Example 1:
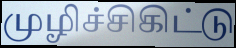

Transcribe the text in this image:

முழிச்சிகிட்டு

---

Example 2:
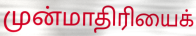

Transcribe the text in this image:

முன்மாதிரியைக்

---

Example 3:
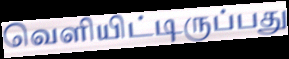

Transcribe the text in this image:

வெளியிட்டிருப்பது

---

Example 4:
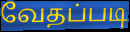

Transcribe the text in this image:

வேதப்படி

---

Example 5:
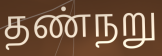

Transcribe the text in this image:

தண்நறு